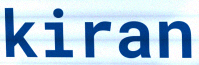
kiran